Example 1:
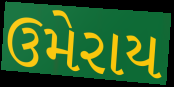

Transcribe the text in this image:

ઉમેરાય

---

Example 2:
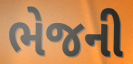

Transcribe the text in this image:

ભેજની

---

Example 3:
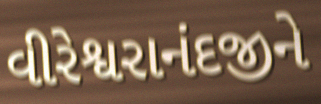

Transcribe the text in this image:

વીરેશ્વરાનંદજીને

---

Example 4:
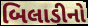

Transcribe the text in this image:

બિલાડીનો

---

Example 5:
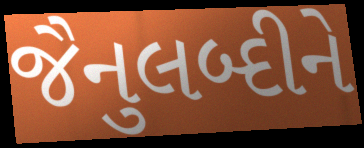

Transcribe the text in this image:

જૈનુલબ્દીને